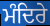
ਮੰਦਿਰੇ